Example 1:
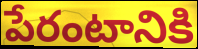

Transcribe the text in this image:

పేరంటానికి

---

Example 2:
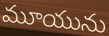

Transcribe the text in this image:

మూయును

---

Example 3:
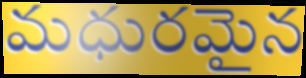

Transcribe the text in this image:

మధురమైన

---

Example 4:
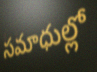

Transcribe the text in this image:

సమాధుల్లో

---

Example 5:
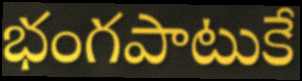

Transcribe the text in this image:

భంగపాటుకే